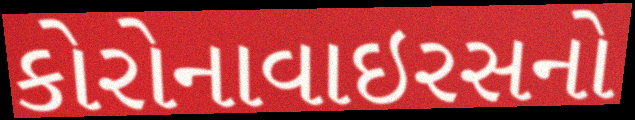
કોરોનાવાઇરસનો